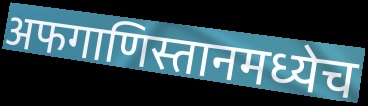
अफगाणिस्तानमध्येच